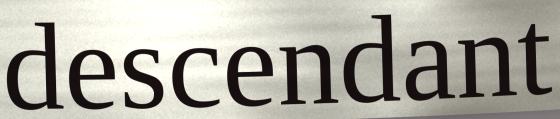
descendant